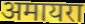
अमायरा